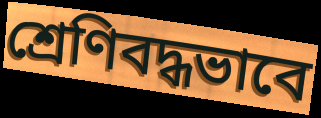
শ্রেণিবদ্ধভাবে